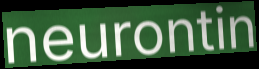
neurontin